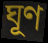
ঘূণ